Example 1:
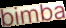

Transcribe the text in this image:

bimba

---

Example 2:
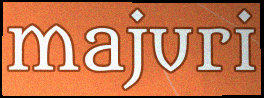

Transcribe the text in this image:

majuri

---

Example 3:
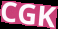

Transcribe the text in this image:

CGK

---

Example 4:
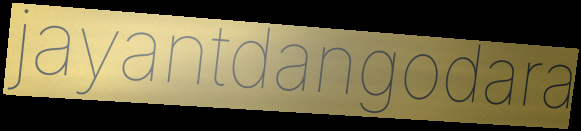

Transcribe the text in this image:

jayantdangodara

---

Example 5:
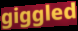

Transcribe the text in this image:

giggled